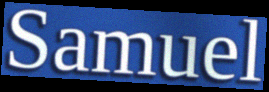
Samuel